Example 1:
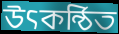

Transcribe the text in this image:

উৎকন্ঠিত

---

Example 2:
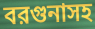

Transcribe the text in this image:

বরগুনাসহ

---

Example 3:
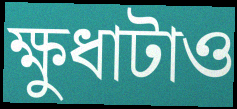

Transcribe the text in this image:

ক্ষুধাটাও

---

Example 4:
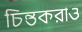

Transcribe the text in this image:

চিন্তকরাও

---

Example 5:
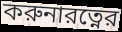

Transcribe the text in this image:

করুনারত্নের